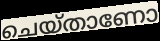
ചെയ്താണോ